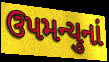
ઉપમન્યુનાં